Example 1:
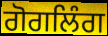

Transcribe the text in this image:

ਗੋਗਲਿੰਗ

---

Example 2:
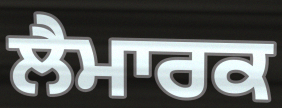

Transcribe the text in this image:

ਲੈਮਾਰਕ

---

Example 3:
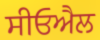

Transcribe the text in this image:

ਸੀਓਐਲ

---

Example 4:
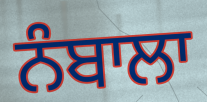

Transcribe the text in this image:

ਨੰਬਾਲਾ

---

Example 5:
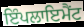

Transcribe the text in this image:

ਇੰਪਲਾਇਮੈਂਟ